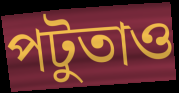
পটুতাও